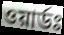
ওয়ার্ডঃ